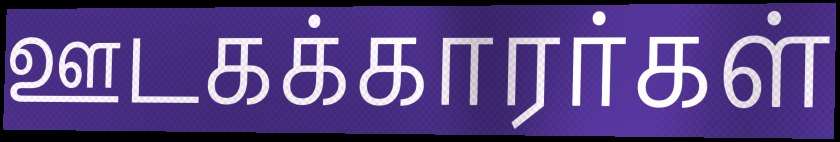
ஊடகக்காரர்கள்